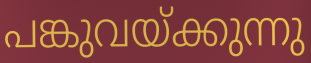
പങ്കുവയ്ക്കുന്നു